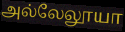
அல்லேலூயா